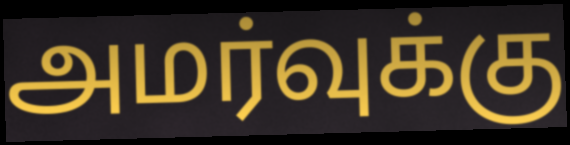
அமர்வுக்கு